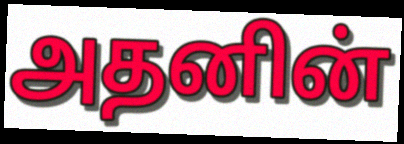
அதனின்